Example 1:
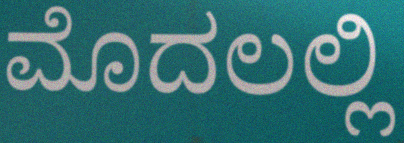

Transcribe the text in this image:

ಮೊದಲಲ್ಲಿ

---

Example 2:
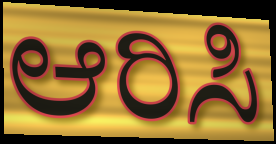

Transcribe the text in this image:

ಆರಿಸಿ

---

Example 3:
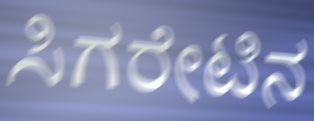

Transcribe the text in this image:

ಸಿಗರೇಟಿನ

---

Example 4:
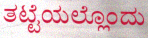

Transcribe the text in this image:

ತಟ್ಟೆಯಲ್ಲೊಂದು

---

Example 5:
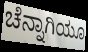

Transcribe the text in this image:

ಚೆನ್ನಾಗಿಯೂ